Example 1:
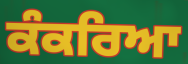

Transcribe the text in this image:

ਕੰਕਰਿਆ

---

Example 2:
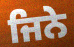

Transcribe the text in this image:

ਜਿਨੇ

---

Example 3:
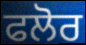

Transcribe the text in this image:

ਫਲੋਰ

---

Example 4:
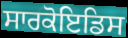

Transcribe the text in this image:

ਸਾਰਕੋਇਡਿਸ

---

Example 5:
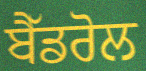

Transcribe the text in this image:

ਬੈੱਡਰੋਲ